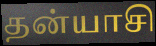
தன்யாசி